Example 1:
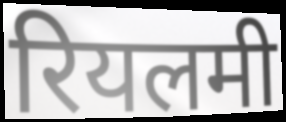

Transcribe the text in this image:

रियलमी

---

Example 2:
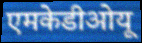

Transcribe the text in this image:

एमकेडीओयू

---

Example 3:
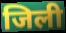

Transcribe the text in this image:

जिली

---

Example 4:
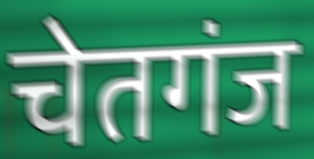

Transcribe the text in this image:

चेतगंज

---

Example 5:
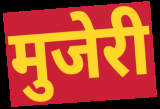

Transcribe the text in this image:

मुजेरी